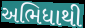
અભિધાથી